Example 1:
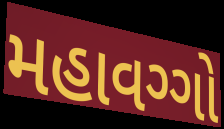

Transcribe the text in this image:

મહાવગ્ગો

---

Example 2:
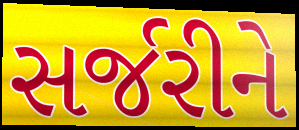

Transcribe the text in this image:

સર્જરીને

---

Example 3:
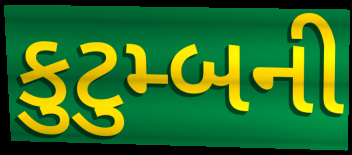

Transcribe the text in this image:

કુટુમ્બની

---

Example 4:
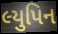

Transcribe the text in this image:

લ્યુપિન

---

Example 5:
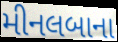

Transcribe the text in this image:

મીનલબાના